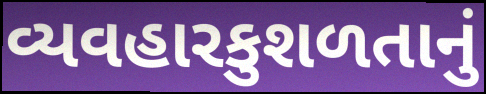
વ્યવહારકુશળતાનું